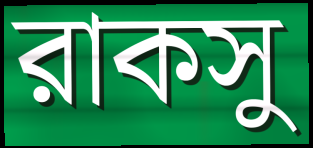
রাকসু